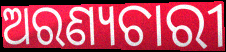
ଅରଣ୍ୟଚାରୀ